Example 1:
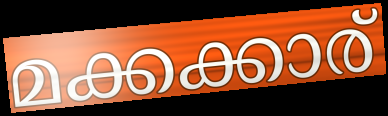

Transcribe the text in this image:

മക്കക്കാര്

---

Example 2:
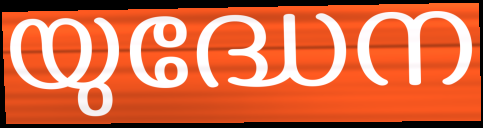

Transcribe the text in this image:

യുദ്ധേന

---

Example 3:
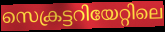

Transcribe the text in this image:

സെക്രട്ടറിയേറ്റിലെ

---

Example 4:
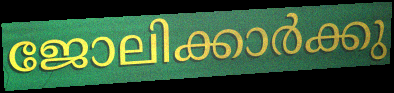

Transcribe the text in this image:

ജോലിക്കാർക്കു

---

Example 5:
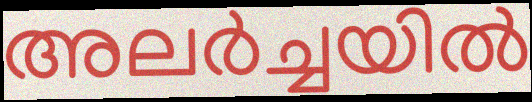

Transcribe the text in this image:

അലർച്ചയിൽ